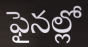
ఫైనల్లో